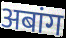
अबांग